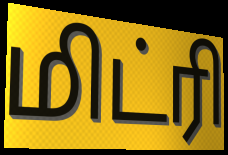
மிட்ரி